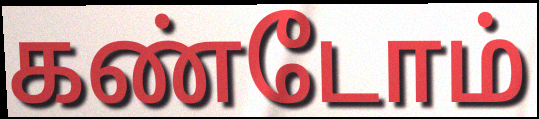
கண்டோம்